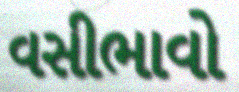
વસીભાવો